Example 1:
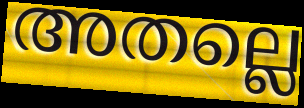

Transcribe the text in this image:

അതല്ലെ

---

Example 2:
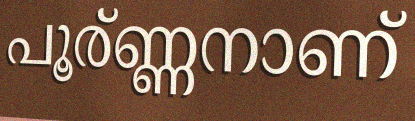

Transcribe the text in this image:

പൂര്ണ്ണനാണ്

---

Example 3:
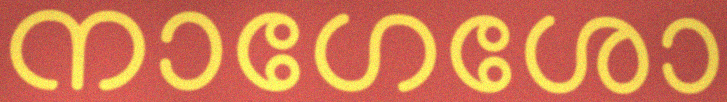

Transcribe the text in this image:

നാഗേശോ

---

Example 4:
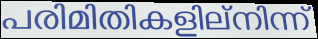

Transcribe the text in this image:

പരിമിതികളില്നിന്ന്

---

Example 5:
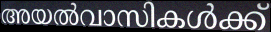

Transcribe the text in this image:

അയൽവാസികൾക്ക്